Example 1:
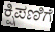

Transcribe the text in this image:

ಕ್ಷಿಪಣಿಗೆ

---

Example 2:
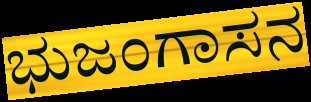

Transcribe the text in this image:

ಭುಜಂಗಾಸನ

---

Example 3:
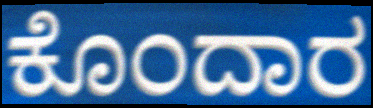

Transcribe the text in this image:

ಕೊಂದಾರ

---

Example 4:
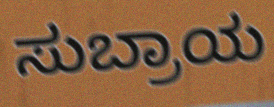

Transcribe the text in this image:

ಸುಬ್ರಾಯ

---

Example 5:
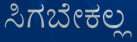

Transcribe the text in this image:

ಸಿಗಬೇಕಲ್ಲ